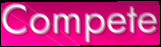
Compete